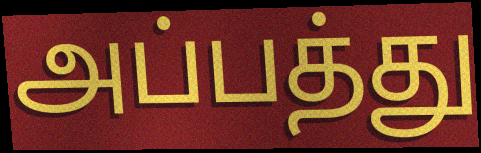
அப்பத்து